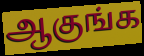
ஆகுங்க